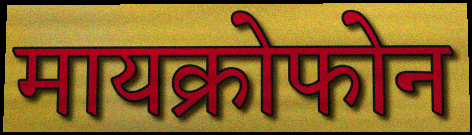
मायक्रोफोन